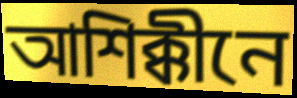
আশিক্কীনে